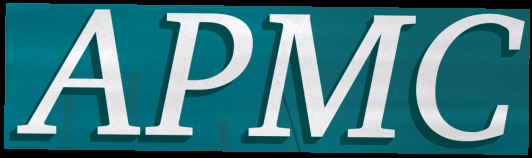
APMC